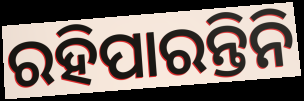
ରହିପାରନ୍ତିନି